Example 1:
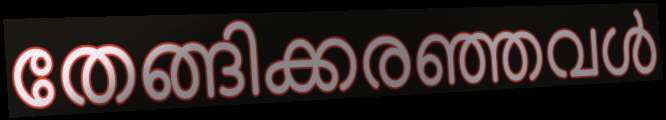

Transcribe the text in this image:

തേങ്ങിക്കരഞ്ഞവൾ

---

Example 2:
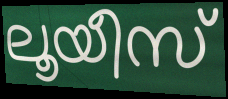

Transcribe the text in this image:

ലൂയീസ്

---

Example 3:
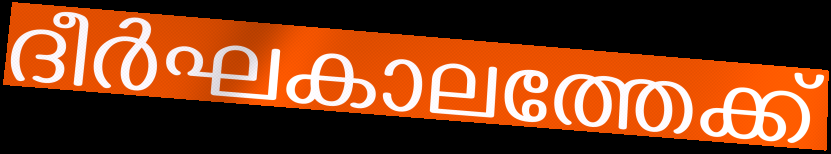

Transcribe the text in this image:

ദീർഘകാലത്തേക്ക്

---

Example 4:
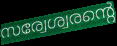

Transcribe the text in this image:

സര്വേശ്വരന്റെ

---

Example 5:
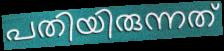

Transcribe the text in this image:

പതിയിരുന്നത്